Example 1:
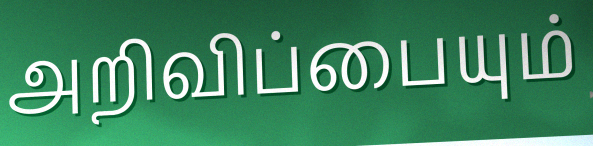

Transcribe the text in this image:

அறிவிப்பையும்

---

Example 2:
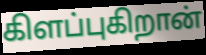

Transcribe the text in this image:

கிளப்புகிறான்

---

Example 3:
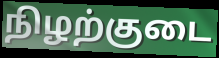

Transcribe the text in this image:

நிழற்குடை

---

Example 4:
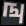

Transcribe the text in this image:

ஙு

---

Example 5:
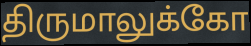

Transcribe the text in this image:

திருமாலுக்கோ